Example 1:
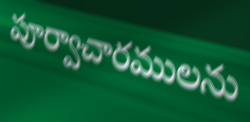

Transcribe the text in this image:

పూర్వాచారములను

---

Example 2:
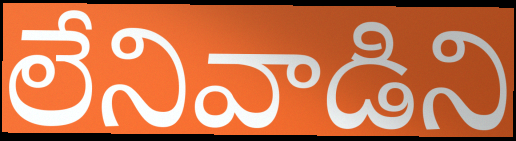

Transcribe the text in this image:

లేనివాడిని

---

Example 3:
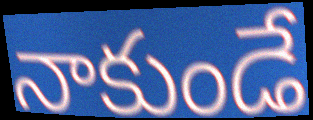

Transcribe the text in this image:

నాకుండే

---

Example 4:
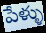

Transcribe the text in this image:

పేళ్ళు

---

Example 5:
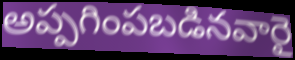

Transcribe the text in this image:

అప్పగింపబడినవారై